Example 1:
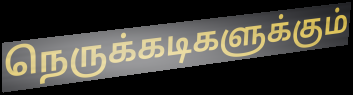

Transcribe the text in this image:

நெருக்கடிகளுக்கும்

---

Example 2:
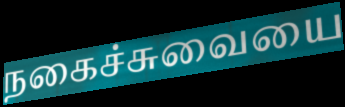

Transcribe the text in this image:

நகைச்சுவையை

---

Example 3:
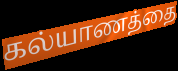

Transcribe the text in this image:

கல்யாணத்தை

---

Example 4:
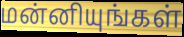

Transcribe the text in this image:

மன்னியுங்கள்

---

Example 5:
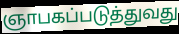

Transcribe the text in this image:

ஞாபகப்படுத்துவது